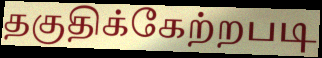
தகுதிக்கேற்றபடி